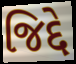
જિદ્દે